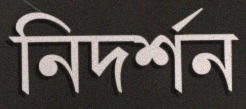
নিদৰ্শন